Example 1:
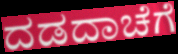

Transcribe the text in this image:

ದಡದಾಚೆಗೆ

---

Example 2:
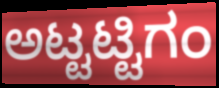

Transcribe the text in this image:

ಅಟ್ಟಟ್ಟಿಗಂ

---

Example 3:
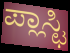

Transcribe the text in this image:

ಪ್ಲಾಸ್ಟಿ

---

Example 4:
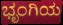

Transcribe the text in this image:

ಭೃಂಗಿಯ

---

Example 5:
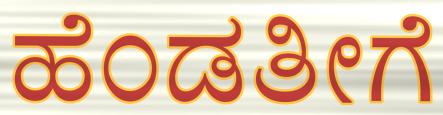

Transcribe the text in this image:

ಹೆಂಡತೀಗೆ